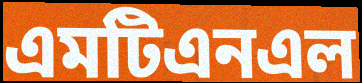
এমটিএনএল